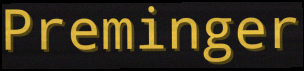
Preminger